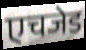
एचजेड